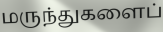
மருந்துகளைப்